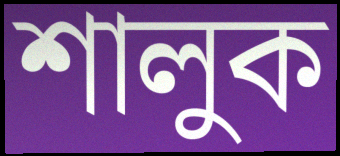
শালুক